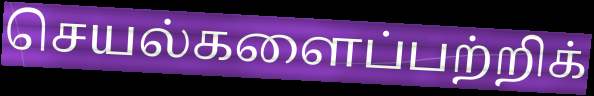
செயல்களைப்பற்றிக்